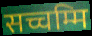
सच्चम्मि